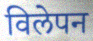
विलेपन